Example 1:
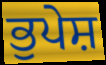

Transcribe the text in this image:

ਭੁਪੇਸ਼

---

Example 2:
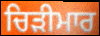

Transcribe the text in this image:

ਚਿੜੀਮਾਰ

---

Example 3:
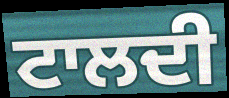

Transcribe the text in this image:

ਟਾਲਦੀ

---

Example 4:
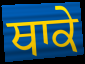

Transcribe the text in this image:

ਥਾਕੇ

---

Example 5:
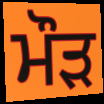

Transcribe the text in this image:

ਮੌਡ਼